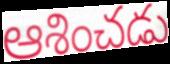
ఆశించడు